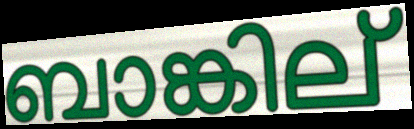
ബാങ്കില്